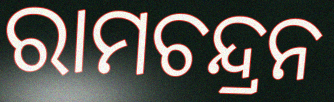
ରାମଚନ୍ଦ୍ରନ